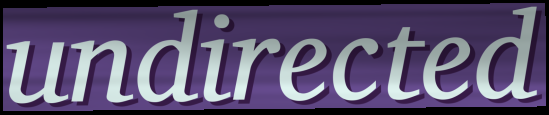
undirected